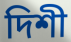
দিশী